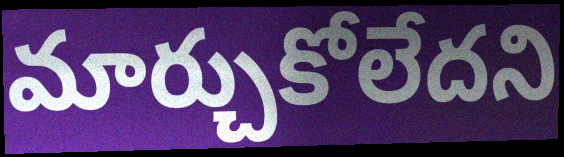
మార్చుకోలేదని